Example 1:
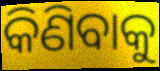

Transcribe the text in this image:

କିଣିବାକୁ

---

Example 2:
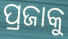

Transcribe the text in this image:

ପ୍ରଜାକୁ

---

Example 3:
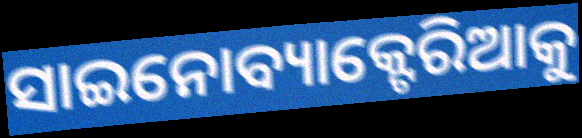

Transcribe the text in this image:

ସାଇନୋବ୍ୟାକ୍ଟେରିଆକୁ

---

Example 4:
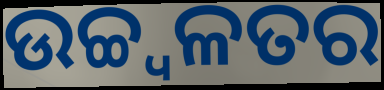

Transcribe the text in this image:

ଉଚ୍ଚ୍ୱଳତର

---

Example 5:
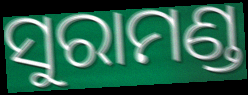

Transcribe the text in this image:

ସୁରାମଣ୍ଡ